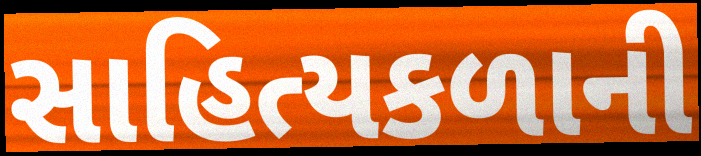
સાહિત્યકળાની